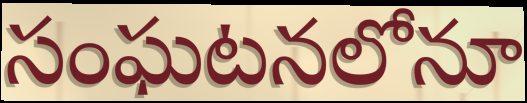
సంఘటనలోనూ